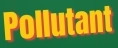
Pollutant